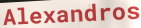
Alexandros